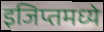
इजिप्तमध्ये